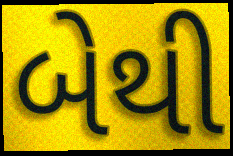
બેથી